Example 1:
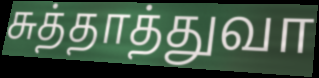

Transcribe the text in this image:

சுத்தாத்துவா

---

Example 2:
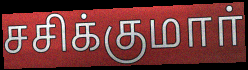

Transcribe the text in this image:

சசிக்குமார்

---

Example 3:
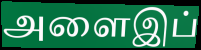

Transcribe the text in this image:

அளைஇப்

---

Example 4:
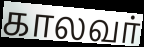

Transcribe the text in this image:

காலவர்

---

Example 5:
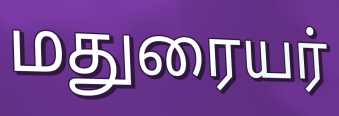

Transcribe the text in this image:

மதுரையர்